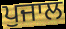
ਪੁਜਾਲ